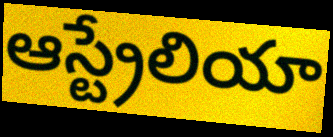
ఆస్ట్రేలియా